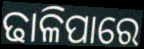
ଢାଳିପାରେ